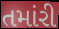
તમાંરી